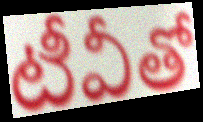
టీవీతో